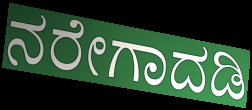
ನರೇಗಾದಡಿ